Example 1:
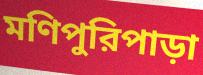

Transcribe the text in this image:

মণিপুরিপাড়া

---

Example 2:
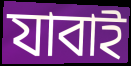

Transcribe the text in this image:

যাবাই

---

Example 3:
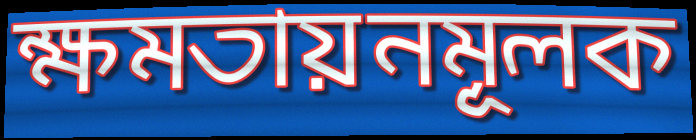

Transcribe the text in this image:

ক্ষমতায়নমূলক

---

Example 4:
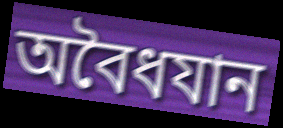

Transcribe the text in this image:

অবৈধযান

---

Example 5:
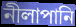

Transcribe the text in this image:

নীলাপানি